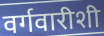
वर्गवारीशी